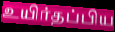
உயிர்தப்பிய